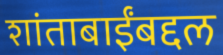
शांताबाईंबद्दल